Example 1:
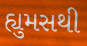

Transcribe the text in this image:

હ્યુમસથી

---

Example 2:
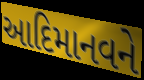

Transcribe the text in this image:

આદિમાનવને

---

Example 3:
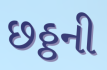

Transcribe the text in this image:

છઠ્ઠની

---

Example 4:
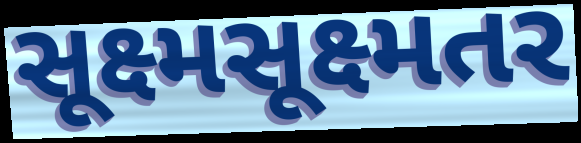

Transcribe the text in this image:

સૂક્ષ્મસૂક્ષ્મતર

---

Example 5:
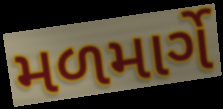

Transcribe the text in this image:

મળમાર્ગે